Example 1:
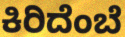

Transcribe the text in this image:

ಕಿರಿದೆಂಬೆ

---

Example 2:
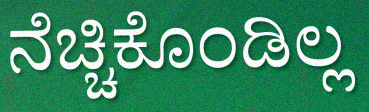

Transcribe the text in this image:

ನೆಚ್ಚಿಕೊಂಡಿಲ್ಲ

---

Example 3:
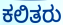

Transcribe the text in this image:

ಕಲಿತರು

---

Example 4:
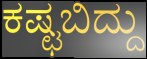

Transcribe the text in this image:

ಕಷ್ಟಬಿದ್ದು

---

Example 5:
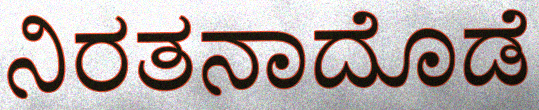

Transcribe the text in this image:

ನಿರತನಾದೊಡೆ